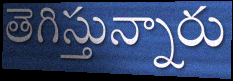
తెగిస్తున్నారు